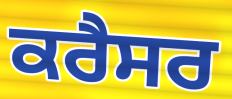
ਕਰੈਸਰ